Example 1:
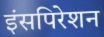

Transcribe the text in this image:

इंसपिरेशन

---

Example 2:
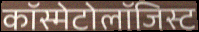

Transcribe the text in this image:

कॉस्मेटोलॉजिस्ट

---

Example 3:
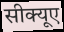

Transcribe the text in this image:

सीक्यूए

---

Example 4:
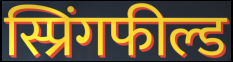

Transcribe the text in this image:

स्प्रिंगफील्ड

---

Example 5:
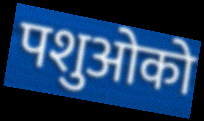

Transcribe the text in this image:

पशुओको